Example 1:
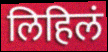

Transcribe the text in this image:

लिहिलं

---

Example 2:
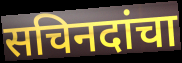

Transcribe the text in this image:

सचिनदांचा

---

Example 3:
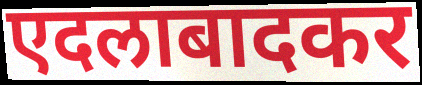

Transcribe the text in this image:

एदलाबादकर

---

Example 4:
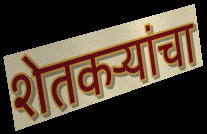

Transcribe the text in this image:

शेतकऱ्यांचा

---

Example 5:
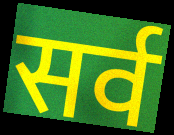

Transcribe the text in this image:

सर्व